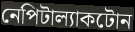
নেপিটাল্যাকটোন